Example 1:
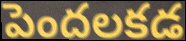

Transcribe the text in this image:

పెందలకడ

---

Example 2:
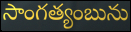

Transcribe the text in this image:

సాంగత్యంబును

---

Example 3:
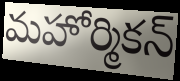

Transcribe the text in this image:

మహోర్మికన్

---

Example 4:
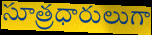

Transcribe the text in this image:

సూత్రధారులుగా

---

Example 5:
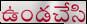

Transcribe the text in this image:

ఉండచేసి